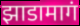
झाडामागं